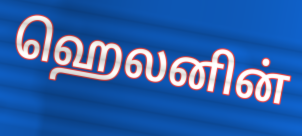
ஹெலனின்